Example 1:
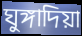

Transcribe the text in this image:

ঘুঙ্গাদিয়া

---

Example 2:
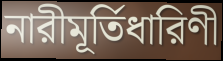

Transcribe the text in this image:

নারীমূর্তিধারিণী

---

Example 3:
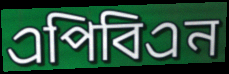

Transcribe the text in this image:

এপিবিএন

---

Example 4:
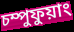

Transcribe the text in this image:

চম্পুফুয়াং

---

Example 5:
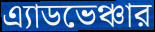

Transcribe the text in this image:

এ্যাডভেঞ্চার